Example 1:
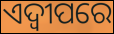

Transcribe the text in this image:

ଏଦ୍ୱୀପରେ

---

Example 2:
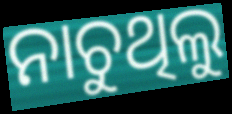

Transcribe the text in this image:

ନାଚୁଥିଲୁ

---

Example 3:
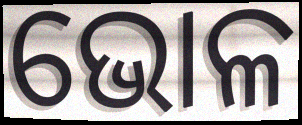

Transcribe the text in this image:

ଭୋଳ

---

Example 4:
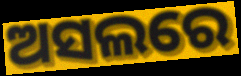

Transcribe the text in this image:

ଅସଲରେ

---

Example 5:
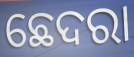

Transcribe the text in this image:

ଛେଦରା